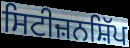
ਸਿਟੀਜ਼ਨਸ਼ਿੱਪ